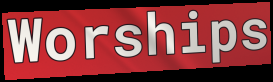
Worships